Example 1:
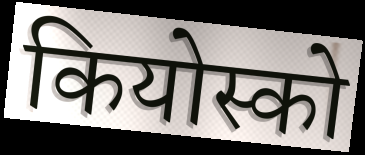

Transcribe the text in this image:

कियोस्को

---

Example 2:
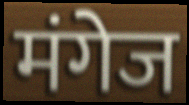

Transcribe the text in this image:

मंगेज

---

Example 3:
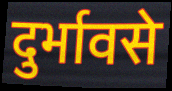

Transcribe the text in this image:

दुर्भावसे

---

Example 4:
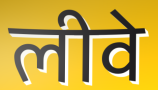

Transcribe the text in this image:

लीवे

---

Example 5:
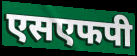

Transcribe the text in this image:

एसएफपी